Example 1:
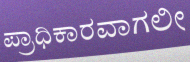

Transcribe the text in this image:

ಪ್ರಾಧಿಕಾರವಾಗಲೀ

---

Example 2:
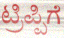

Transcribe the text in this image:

ಟ್ರಿಪ್ಪಿಗೆ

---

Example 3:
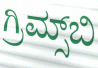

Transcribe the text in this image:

ಗ್ರಿಮ್ಸ್‌ಬಿ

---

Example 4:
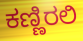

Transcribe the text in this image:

ಕಣ್ಣಿರಲಿ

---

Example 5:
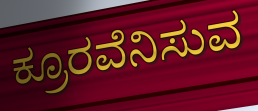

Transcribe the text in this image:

ಕ್ರೂರವೆನಿಸುವ